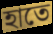
হাতে